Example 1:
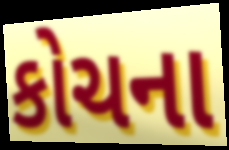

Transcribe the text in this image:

કોચના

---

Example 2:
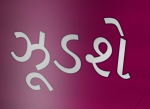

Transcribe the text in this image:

ઝૂડશે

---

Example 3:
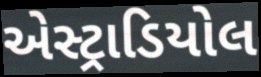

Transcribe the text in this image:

એસ્ટ્રાડિયોલ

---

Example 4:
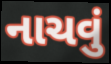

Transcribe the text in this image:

નાચવું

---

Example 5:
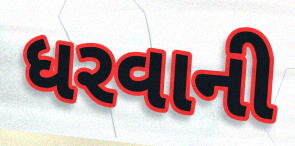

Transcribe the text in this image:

ધરવાની